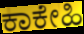
ಕಾಕೇಹಿ